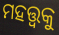
ମହତ୍ତ୍ଵକୁ